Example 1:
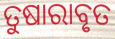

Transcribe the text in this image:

ତୁଷାରାବୃତ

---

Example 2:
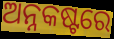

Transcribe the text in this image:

ଅନ୍ନକଷ୍ଟରେ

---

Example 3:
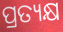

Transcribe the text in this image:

ପ୍ରତ୍ଯକ୍ଷ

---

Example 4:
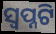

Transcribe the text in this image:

ସ୍ୱପ୍ନଟି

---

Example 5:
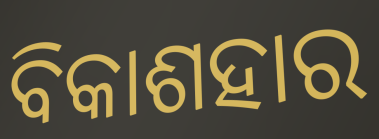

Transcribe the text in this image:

ବିକାଶହାର